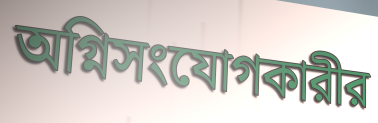
অগ্নিসংযোগকারীর